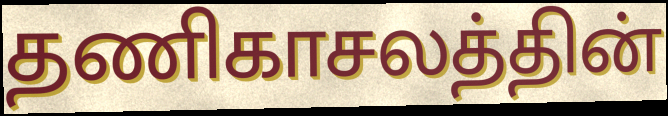
தணிகாசலத்தின்